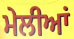
ਮੇਲੀਆਂ